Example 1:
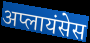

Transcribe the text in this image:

अप्लायंसेस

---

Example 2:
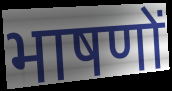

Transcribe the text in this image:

भाषणों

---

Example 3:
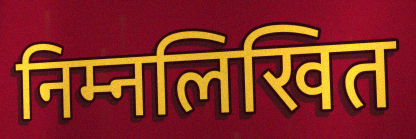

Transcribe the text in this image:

निम्नलिखित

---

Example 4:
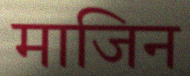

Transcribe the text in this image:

माजिन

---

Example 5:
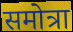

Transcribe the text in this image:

समोत्रा